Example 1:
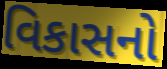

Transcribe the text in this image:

વિકાસનો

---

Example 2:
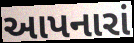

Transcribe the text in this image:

આપનારાં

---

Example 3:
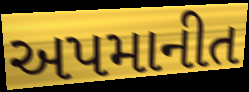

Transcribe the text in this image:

અપમાનીત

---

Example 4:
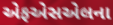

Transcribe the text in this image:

એફએસએલના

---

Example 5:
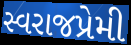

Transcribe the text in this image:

સ્વરાજપ્રેમી